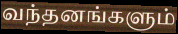
வந்தனங்களும்